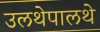
उलथेपालथे